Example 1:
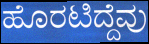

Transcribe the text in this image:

ಹೊರಟಿದ್ದೆವು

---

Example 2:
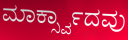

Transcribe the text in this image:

ಮಾರ್ಕ್ಸ್ವಾದವು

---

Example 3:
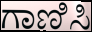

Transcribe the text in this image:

ಗಾಣಿಸಿ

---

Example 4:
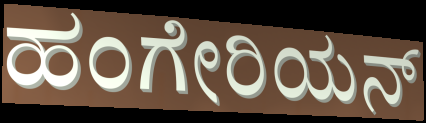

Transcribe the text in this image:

ಹಂಗೇರಿಯನ್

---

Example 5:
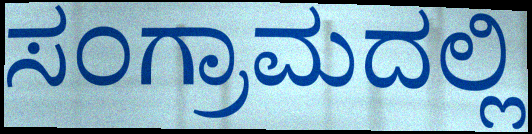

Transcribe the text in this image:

ಸಂಗ್ರಾಮದಲ್ಲಿ